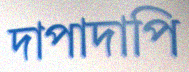
দাপাদাপি